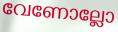
വേണോല്ലോ